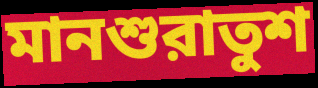
মানশুরাতুশ